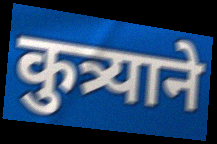
कुत्र्याने